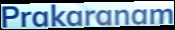
Prakaranam